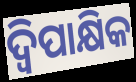
ଦ୍ବିପାକ୍ଷିକ